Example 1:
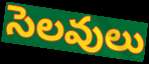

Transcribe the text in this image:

సెలవులు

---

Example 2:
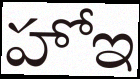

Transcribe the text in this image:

హోఇ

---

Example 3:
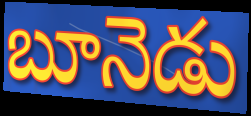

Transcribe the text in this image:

బూనెడు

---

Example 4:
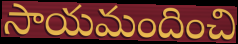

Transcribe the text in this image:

సాయమందించి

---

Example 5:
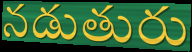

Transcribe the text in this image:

నడుతురు